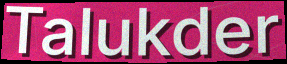
Talukder